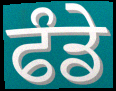
ਫੰਡੇ